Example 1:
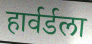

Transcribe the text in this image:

हार्वर्डला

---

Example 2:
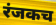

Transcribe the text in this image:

रंजकच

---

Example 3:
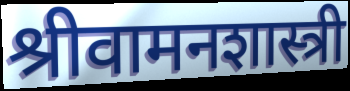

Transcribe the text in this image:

श्रीवामनशास्त्री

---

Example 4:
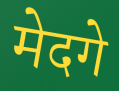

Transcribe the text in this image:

मेदगे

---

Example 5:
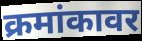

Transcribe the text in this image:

क्रमांकावर